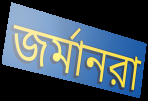
জর্মানরা